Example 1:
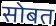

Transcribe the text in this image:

सोबत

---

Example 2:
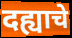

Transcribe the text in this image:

दह्याचे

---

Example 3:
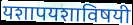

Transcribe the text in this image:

यशापयशाविषयी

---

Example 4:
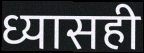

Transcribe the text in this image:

ध्यासही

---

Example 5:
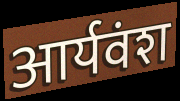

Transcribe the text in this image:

आर्यवंश